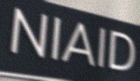
NIAID